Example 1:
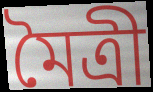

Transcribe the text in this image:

মৈত্ৰী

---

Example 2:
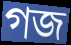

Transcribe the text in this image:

গজ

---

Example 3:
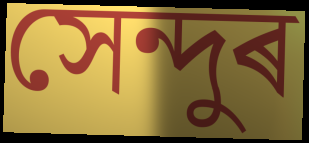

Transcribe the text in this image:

সেন্দুৰ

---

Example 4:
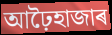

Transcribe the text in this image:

আঢ়ৈহাজাৰ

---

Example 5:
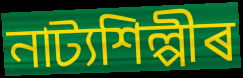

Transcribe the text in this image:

নাট্যশিল্পীৰ